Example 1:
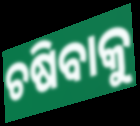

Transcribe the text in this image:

ଚଷିବାକୁ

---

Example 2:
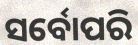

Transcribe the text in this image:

ସର୍ବୋପରି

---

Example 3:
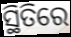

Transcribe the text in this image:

ସ୍ଥିତିରେ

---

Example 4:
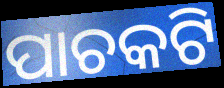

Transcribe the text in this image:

ପାଚକଟି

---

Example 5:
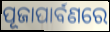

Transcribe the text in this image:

ପୂଜାପାର୍ବଣରେ